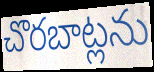
చొరబాట్లను